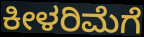
ಕೀಳರಿಮೆಗೆ